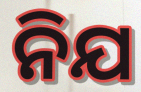
ନିଯ